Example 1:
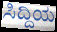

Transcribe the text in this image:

ಸಿದ್ದಿಯ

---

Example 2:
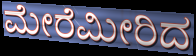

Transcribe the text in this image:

ಮೇರೆಮೀರಿದ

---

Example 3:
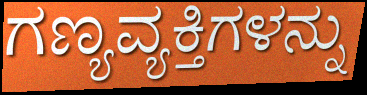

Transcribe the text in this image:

ಗಣ್ಯವ್ಯಕ್ತಿಗಳನ್ನು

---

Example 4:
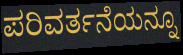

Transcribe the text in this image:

ಪರಿವರ್ತನೆಯನ್ನೂ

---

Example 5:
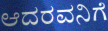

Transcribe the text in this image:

ಆದರವನಿಗೆ